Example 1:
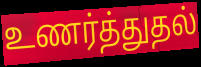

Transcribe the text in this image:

உணர்த்துதல்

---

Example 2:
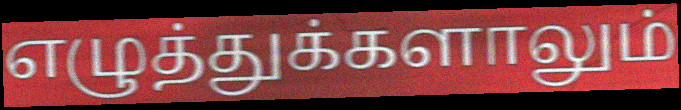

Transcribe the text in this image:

எழுத்துக்களாலும்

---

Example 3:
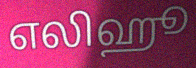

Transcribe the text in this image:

எலிஹூ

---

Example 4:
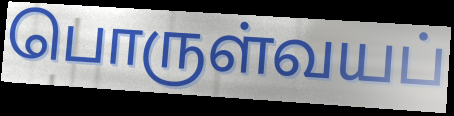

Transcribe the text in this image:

பொருள்வயப்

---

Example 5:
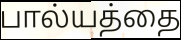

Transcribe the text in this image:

பால்யத்தை